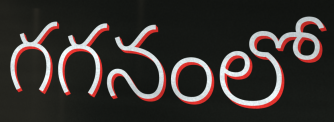
గగనంలో